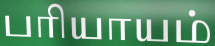
பரியாயம்